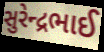
સુરેન્દ્રભાઈ